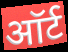
ऑर्ट